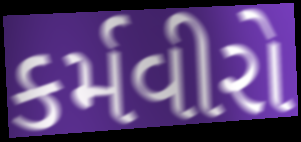
કર્મવીરો